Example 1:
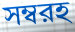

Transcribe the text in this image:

সম্বরহ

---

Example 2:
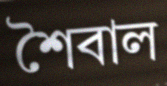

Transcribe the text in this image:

শৈবাল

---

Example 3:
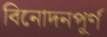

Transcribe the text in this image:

বিনোদনপূর্ণ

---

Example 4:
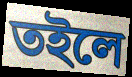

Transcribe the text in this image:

তইলে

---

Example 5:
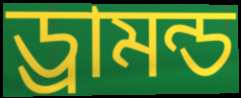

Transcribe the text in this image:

ড্রামন্ড